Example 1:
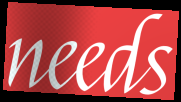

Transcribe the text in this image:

needs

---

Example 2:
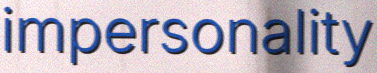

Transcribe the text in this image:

impersonality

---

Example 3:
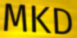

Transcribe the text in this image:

MKD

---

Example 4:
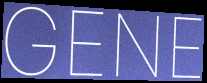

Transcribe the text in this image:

GENE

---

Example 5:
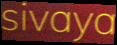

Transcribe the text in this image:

sivaya